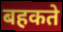
बहकते